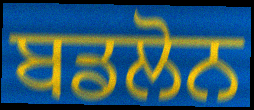
ਬਡਲੋਨ